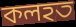
কলহত